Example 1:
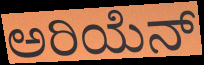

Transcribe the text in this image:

ಅರಿಯೆನ್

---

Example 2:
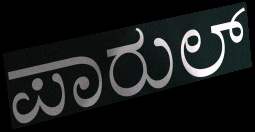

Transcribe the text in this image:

ಪಾರುಲ್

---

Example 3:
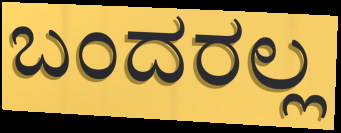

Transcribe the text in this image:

ಬಂದರಲ್ಲ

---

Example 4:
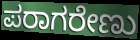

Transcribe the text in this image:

ಪರಾಗರೇಣು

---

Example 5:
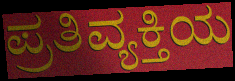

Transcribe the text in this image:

ಪ್ರತಿವ್ಯಕ್ತಿಯ